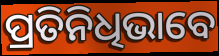
ପ୍ରତିନିଧିଭାବେ